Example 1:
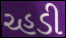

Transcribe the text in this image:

ચ્હડી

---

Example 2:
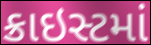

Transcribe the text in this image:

ક્રાઇસ્ટમાં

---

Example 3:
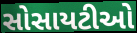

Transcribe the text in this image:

સોસાયટીઓ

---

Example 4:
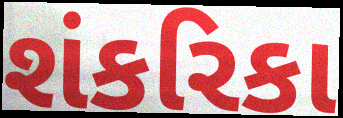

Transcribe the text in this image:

શંકરિકા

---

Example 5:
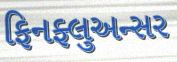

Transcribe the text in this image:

ફિનફ્લુઅન્સર